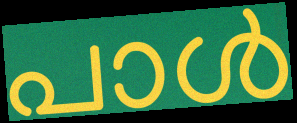
പാൾ